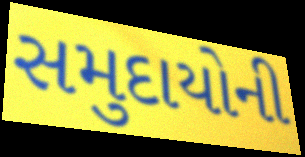
સમુદાયોની